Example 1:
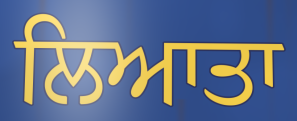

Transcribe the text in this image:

ਲਿਆਤਾ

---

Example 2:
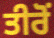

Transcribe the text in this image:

ਤੀਰੋਂ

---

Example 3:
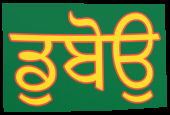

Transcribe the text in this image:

ਡੁਬੋਉ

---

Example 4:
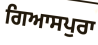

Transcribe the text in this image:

ਗਿਆਸਪੁਰਾ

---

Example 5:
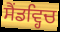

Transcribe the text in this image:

ਸੈਂਡਵ੍ਹਿਚ